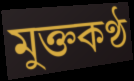
মুক্তকণ্ঠ